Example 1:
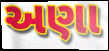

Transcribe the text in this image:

અણા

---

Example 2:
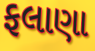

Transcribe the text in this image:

ફલાણા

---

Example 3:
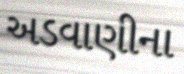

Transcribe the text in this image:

અડવાણીના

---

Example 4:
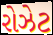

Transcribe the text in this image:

રોઝેટ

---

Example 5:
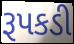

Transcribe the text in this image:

રૂપકડી